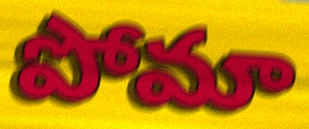
పోమా